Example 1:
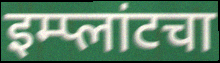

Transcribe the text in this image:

इम्प्लांटचा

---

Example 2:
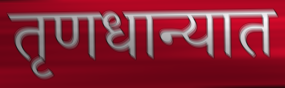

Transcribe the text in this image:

तृणधान्यात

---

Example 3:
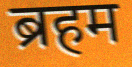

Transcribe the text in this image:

ब्रहम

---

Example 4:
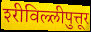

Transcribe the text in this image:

श्रीविल्लीपुत्तूर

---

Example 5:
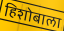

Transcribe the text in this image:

हिशोबाला